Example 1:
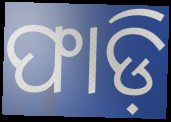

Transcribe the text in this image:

ଫାଡ଼ି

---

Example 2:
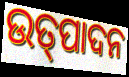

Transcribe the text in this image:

ଉତ୍‌ପାଦନ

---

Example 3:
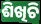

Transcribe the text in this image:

ଶିଖିଚି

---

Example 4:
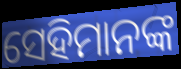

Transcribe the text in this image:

ସେହିମାନଙ୍କ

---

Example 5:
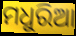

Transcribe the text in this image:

ମଧୁରିଆ